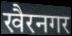
खैरनगर